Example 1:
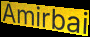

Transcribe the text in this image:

Amirbai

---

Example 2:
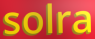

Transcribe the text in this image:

solra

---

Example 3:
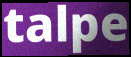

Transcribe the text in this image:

talpe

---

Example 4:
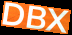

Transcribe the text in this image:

DBX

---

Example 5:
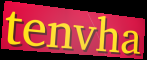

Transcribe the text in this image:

tenvha